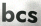
bcs